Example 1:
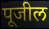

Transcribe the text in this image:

पूजील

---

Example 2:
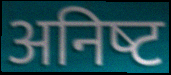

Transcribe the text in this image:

अनिष्‍ट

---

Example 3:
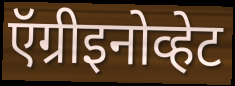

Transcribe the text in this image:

ऍग्रीइनोव्हेट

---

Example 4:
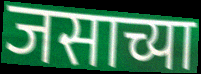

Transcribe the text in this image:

जसाच्या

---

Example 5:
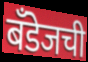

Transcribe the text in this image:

बँडेजची